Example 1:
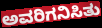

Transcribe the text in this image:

ಅವರಿಗನಿಸಿತು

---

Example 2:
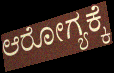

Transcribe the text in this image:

ಆರೋಗ್ಯಕ್ಕೆ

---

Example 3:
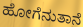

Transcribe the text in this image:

ಹೋಗೆನುತಾನೆ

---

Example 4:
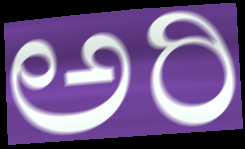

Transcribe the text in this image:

ಅರಿ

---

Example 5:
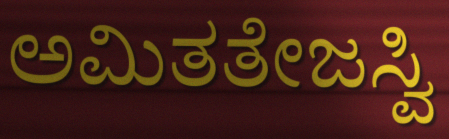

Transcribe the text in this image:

ಅಮಿತತೇಜಸ್ವಿ